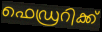
ഫെഡ്രറിക്ക്